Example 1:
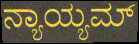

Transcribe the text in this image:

ನ್ಯಾಯ್ಯಮ್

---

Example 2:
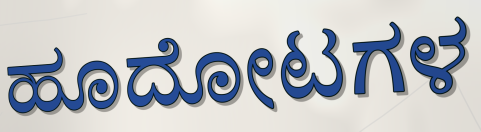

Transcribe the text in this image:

ಹೂದೋಟಗಳ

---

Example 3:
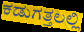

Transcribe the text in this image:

ಕಡುಗತ್ತಲಲ್ಲಿ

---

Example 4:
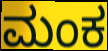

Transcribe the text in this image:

ಮಂಕ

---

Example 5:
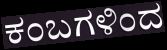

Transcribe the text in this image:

ಕಂಬಗಳಿಂದ